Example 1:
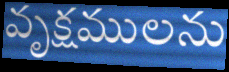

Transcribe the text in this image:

వృక్షములను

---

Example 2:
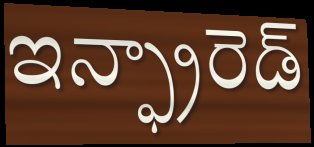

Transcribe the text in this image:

ఇన్ఫ్రారెడ్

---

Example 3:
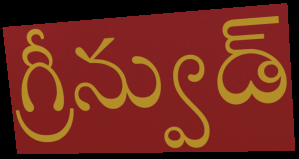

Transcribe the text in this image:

గ్రీన్వుడ్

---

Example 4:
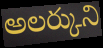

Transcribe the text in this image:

అలర్కుని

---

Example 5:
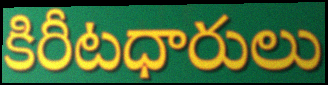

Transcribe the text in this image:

కిరీటధారులు